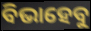
ବିଭାହେବୁ